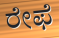
ರೇಫೆ